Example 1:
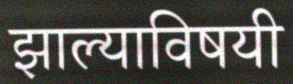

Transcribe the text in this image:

झाल्याविषयी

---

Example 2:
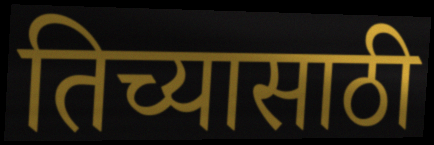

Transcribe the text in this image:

तिच्यासाठी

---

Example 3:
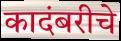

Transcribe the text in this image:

कादंबरीचे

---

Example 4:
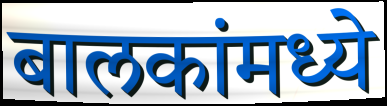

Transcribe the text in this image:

बालकांमध्ये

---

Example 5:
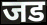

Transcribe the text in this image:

जड